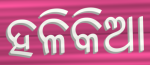
ହଳିକିଆ